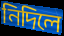
নিদিলে